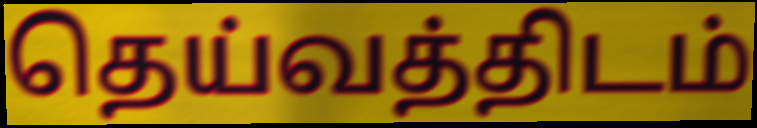
தெய்வத்திடம்